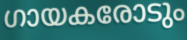
ഗായകരോടും